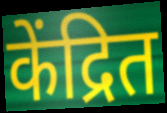
केंद्रित